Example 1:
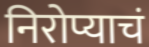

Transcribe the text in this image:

निरोप्याचं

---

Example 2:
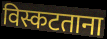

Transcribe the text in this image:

विस्कटताना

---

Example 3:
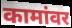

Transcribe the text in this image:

कामांवर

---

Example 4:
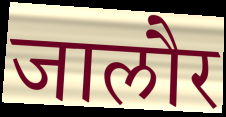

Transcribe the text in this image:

जालौर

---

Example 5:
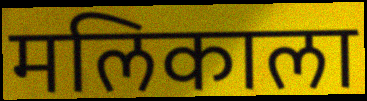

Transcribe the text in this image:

मलिकाला